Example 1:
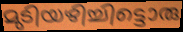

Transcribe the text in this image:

മുടിയഴിച്ചിട്ടൊരു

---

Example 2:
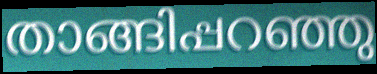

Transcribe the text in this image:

താങ്ങിപ്പറഞ്ഞു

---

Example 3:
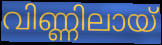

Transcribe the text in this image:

വിണ്ണിലായ്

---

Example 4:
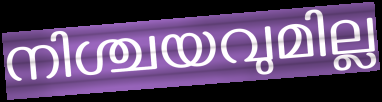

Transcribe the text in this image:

നിശ്ചയവുമില്ല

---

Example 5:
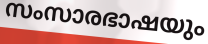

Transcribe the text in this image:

സംസാരഭാഷയും